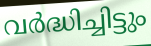
വർദ്ധിച്ചിട്ടും